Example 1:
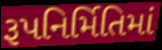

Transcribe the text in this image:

રૂપનિર્મિતિમાં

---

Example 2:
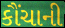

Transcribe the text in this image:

કૌંચાની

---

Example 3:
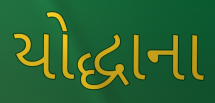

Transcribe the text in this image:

યોદ્ધાના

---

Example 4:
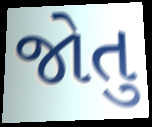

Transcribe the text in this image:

જોતુ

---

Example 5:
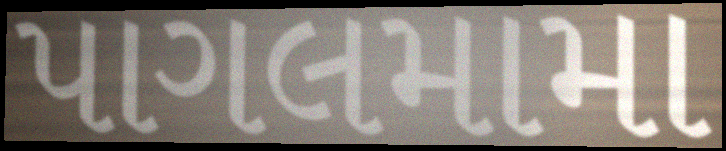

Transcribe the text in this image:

પાગલમામા